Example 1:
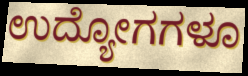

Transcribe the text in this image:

ಉದ್ಯೋಗಗಳೂ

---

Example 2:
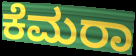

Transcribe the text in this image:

ಕೆಮರಾ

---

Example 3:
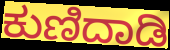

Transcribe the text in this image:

ಕುಣಿದಾಡಿ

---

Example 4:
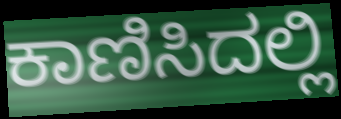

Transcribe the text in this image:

ಕಾಣಿಸಿದಲ್ಲಿ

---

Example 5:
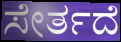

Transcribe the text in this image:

ಸೇರ್ತದೆ